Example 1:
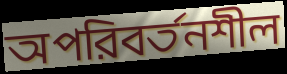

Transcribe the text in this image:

অপরিবর্তনশীল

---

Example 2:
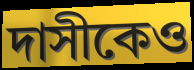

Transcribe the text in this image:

দাসীকেও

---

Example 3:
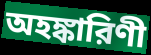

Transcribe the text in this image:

অহঙ্কারিণী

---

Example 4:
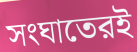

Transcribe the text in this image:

সংঘাতেরই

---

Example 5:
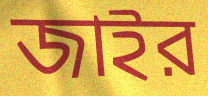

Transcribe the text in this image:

জাইর